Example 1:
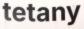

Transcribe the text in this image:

tetany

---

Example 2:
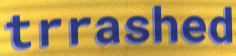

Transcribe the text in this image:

trrashed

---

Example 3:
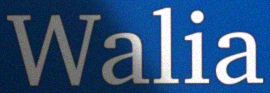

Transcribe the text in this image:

Walia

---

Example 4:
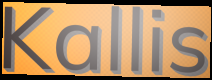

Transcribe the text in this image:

Kallis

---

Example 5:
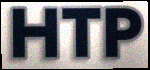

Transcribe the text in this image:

HTP